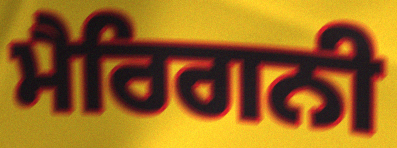
ਮੈਰਿਗਨੀ